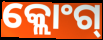
କ୍ଲୋଂଗ୍